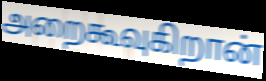
அறைகூவுகிறான்